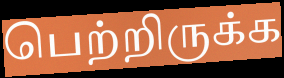
பெற்றிருக்க